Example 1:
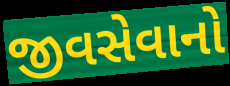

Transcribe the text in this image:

જીવસેવાનો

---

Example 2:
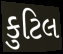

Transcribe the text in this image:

કુટિલ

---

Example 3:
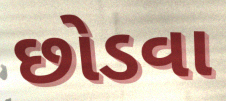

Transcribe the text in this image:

છોડવા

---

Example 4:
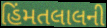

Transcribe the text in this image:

હિંમતલાલની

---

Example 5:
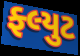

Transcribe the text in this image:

ફ્લ્યુટ